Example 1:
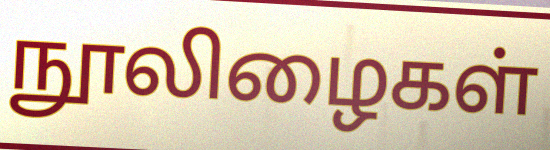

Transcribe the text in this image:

நூலிழைகள்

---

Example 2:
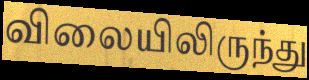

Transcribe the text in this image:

விலையிலிருந்து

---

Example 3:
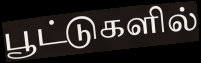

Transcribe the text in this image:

பூட்டுகளில்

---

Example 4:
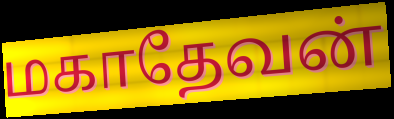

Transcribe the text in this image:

மகாதேவன்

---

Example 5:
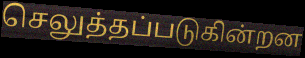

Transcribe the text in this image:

செலுத்தப்படுகின்றன